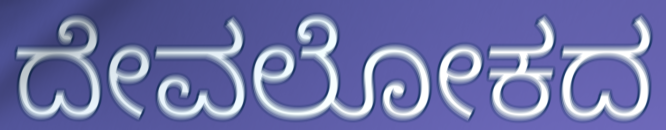
ದೇವಲೋಕದ